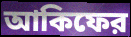
আকিফের